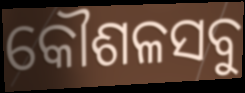
କୌଶଳସବୁ